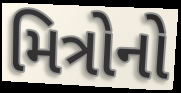
મિત્રોનો